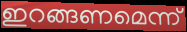
ഇറങ്ങണമെന്ന്